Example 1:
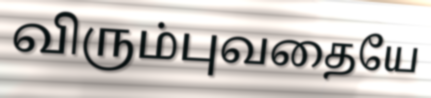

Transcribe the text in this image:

விரும்புவதையே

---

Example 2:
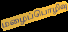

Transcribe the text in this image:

மழைப்பொழிவு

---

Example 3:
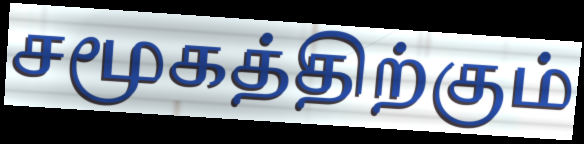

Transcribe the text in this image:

சமூகத்திற்கும்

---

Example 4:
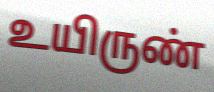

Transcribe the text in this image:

உயிருண்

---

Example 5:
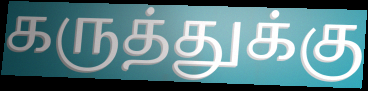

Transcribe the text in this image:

கருத்துக்கு